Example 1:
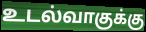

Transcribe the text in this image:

உடல்வாகுக்கு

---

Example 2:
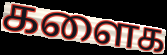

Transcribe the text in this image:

களைக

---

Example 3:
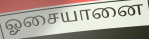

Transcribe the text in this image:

ஓசையானை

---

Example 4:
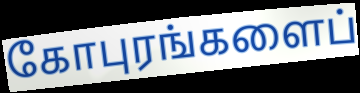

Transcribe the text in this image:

கோபுரங்களைப்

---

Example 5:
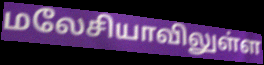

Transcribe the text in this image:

மலேசியாவிலுள்ள